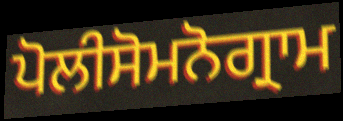
ਪੋਲੀਸੋਮਨੋਗ੍ਰਾਮ